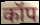
कॉप